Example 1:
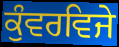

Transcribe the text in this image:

ਕੁੰਵਰਵਿਜੇ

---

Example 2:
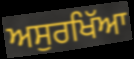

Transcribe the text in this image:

ਅਸੁਰਖਿੱਆ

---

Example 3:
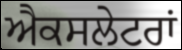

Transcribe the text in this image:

ਐਕਸਲੇਟਰਾਂ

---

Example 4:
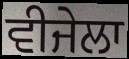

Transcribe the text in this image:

ਵੀਜੇਲਾ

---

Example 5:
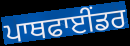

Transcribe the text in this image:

ਪਾਥਫਾਈਂਡਰ